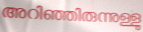
അറിഞ്ഞിരുന്നുള്ളു